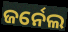
ଜର୍ନେଲ